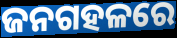
ଜନଗହଳରେ